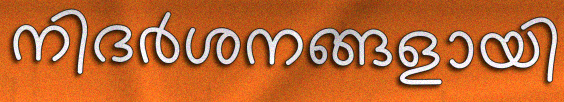
നിദർശനങ്ങളായി